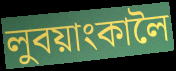
লুবয়াংকালৈ